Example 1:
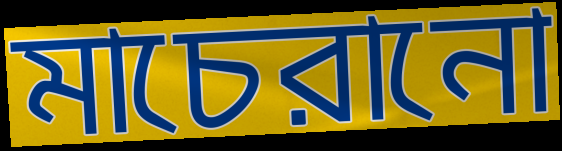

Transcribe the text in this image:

মাচেরানো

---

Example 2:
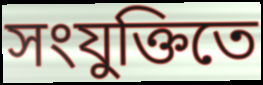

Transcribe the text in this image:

সংযুক্তিতে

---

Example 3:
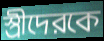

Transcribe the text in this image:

স্ত্রীদেরকে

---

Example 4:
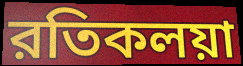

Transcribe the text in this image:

রতিকলয়া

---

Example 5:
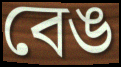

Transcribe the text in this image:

বেঙ